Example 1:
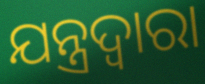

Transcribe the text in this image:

ଯନ୍ତ୍ରଦ୍ବାରା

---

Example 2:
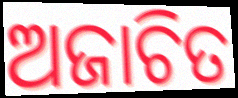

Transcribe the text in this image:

ଅଜାଚିତ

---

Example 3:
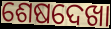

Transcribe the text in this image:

ଶେଷଦେଖା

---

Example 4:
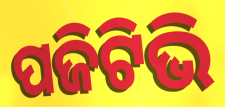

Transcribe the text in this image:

ପଜିଟିଭି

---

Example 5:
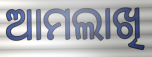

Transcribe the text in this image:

ଆମଲାଖି